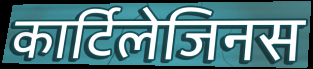
कार्टिलेजिनस